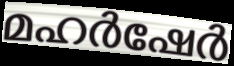
മഹർഷേർ